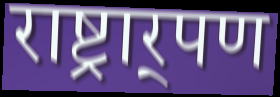
राष्ट्रार्पण